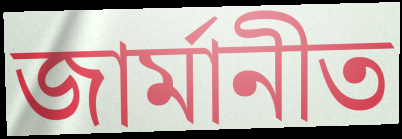
জাৰ্মানীত